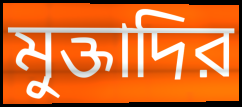
মুক্তাদির